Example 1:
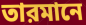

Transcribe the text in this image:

তারমানে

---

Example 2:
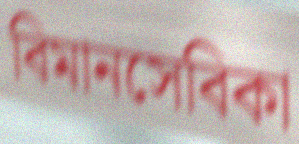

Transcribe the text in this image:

বিমানসেবিকা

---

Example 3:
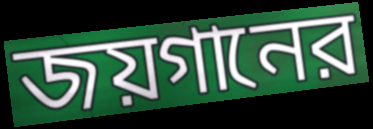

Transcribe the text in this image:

জয়গানের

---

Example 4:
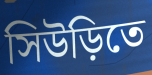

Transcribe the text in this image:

সিউড়িতে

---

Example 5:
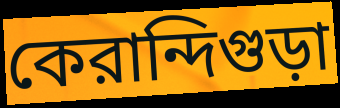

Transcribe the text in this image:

কেরান্দিগুড়া